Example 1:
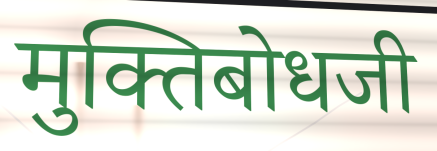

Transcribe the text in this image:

मुक्तिबोधजी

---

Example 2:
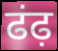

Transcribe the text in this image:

ढंढ़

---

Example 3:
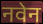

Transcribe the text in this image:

नवेन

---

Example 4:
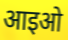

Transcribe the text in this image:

आइओ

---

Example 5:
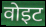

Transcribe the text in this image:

वोइट